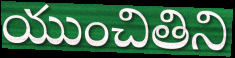
యుంచితిని